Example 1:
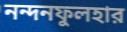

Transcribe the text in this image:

নন্দনফুলহার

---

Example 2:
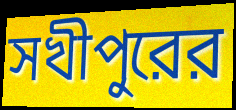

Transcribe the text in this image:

সখীপুরের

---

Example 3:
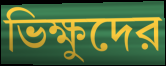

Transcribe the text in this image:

ভিক্ষুদের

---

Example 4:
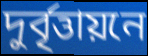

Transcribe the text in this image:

দুর্বৃত্তায়নে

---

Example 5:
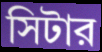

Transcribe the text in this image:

সিটার